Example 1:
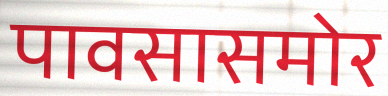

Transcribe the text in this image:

पावसासमोर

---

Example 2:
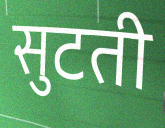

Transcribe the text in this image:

सुटती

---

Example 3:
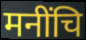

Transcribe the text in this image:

मनींचि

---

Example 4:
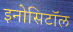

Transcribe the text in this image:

इनोसिटॉल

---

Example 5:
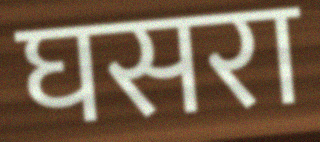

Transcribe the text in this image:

घसरा